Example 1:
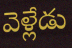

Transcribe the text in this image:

వెళ్లేడు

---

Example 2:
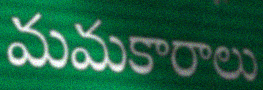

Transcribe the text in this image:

మమకారాలు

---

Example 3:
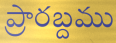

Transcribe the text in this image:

ప్రారబ్దము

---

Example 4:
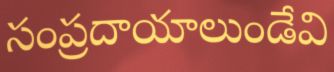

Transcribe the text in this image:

సంప్రదాయాలుండేవి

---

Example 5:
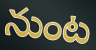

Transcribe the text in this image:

నుంట